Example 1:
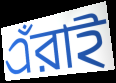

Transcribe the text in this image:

এঁরাই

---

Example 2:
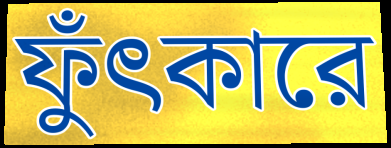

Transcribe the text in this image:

ফুঁৎকারে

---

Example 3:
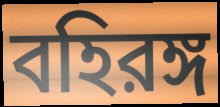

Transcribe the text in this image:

বহিরঙ্গ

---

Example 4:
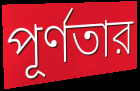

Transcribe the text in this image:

পূর্ণতার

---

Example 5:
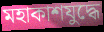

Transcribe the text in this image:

মহাকাশযুদ্ধে